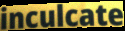
inculcate